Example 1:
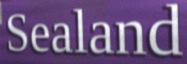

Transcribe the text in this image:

Sealand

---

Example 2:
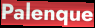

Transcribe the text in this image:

Palenque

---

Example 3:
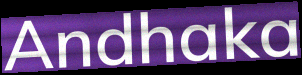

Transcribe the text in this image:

Andhaka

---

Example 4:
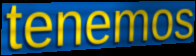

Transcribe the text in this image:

tenemos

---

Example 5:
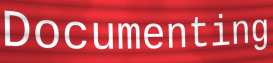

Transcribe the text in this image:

Documenting